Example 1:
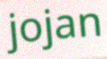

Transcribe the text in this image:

jojan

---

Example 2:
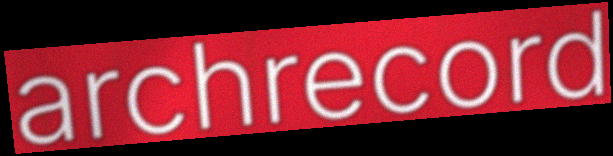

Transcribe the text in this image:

archrecord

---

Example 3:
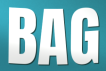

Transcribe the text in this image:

BAG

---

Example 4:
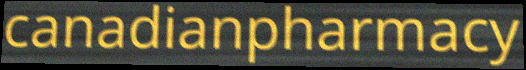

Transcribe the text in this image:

canadianpharmacy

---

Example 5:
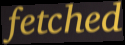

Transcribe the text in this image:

fetched